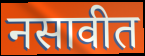
नसावीत